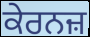
ਕੇਰਨਜ਼